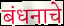
बंधनाचे